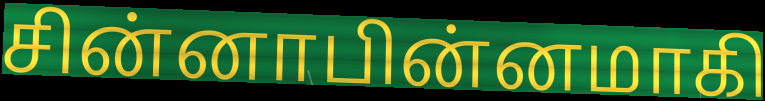
சின்னாபின்னமாகி